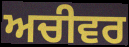
ਅਚੀਵਰ